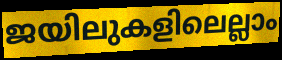
ജയിലുകളിലെല്ലാം